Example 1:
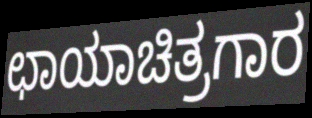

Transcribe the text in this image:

ಛಾಯಾಚಿತ್ರಗಾರ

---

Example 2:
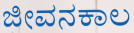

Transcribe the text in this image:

ಜೀವನಕಾಲ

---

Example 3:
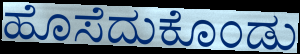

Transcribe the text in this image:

ಹೊಸೆದುಕೊಂಡು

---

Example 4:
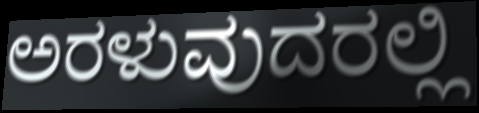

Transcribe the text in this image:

ಅರಳುವುದರಲ್ಲಿ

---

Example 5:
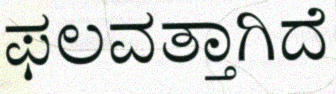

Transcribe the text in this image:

ಫಲವತ್ತಾಗಿದೆ